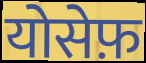
योसेफ़